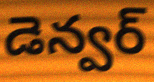
డెన్వర్